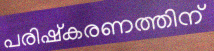
പരിഷ്കരണത്തിന്